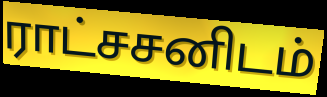
ராட்சசனிடம்